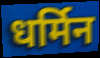
धर्मिन